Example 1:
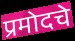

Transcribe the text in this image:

प्रमोदचे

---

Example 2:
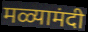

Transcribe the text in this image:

मळ्यामंदी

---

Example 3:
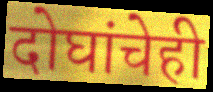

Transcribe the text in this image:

दोघांचेही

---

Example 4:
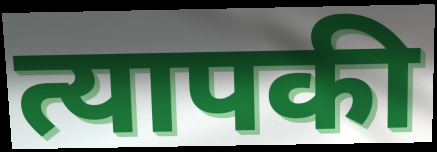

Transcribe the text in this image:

त्यापकी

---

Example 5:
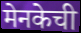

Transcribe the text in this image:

मेनकेची